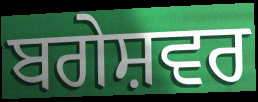
ਬਗੇਸ਼ਵਰ